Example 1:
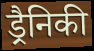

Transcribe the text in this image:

ड्रैनिकी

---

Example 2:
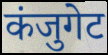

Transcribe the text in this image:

कंजुगेट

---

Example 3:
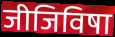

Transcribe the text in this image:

जीजिविषा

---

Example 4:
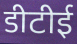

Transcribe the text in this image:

डीटीई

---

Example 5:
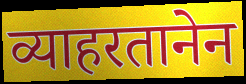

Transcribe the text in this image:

व्याहरतानेन